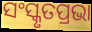
ସଂସ୍କୃତପ୍ରଭା